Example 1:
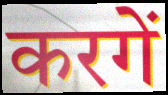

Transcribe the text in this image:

करगें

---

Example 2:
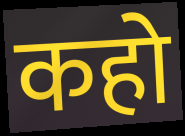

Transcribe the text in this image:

कहो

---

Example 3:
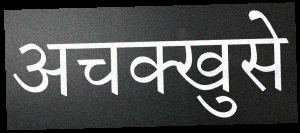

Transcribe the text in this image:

अचक्खुसे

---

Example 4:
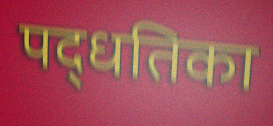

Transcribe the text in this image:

पद्धतिका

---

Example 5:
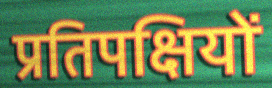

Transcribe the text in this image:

प्रतिपक्षियों